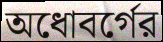
অধোবর্গের